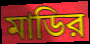
মাডির